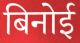
बिनोई